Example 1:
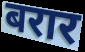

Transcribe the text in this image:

बरार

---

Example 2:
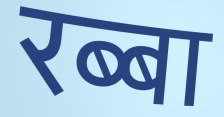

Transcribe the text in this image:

रब्बा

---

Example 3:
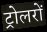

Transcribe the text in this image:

ट्रोलरों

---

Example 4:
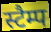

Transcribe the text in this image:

स्टैम्प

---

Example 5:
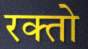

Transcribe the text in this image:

रक्तो